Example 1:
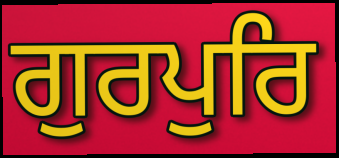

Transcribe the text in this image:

ਗੁਰਪੁਰਿ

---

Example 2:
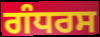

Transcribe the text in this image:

ਗੰਧਰਸ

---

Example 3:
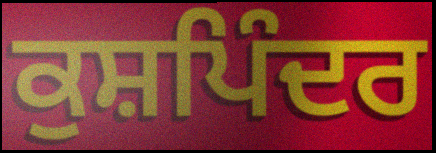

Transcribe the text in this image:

ਕੁਸ਼ਪਿੰਦਰ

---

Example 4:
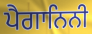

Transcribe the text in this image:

ਪੈਗਾਨਿਨੀ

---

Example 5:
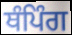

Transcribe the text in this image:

ਥੰਪਿੰਗ